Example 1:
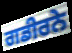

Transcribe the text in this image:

ਗਡੀਰਨੇ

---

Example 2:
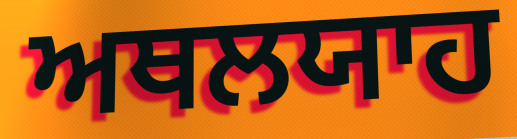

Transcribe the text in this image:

ਅਥਲਯਾਹ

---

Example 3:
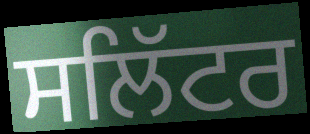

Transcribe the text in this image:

ਸਲਿੱਟਰ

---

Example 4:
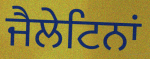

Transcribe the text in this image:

ਜੈਲੇਟਿਨਾਂ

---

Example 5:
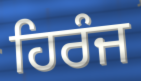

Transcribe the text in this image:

ਹਿਰੰਜ